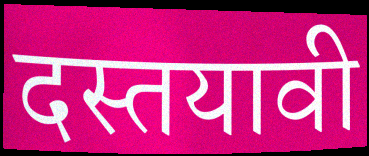
दस्तयावी